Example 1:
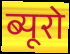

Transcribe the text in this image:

ब्यूरो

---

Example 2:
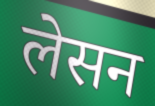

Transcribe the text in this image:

लेसन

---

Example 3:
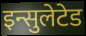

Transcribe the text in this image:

इन्सुलेटेड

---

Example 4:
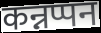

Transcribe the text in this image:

कन्नप्पन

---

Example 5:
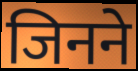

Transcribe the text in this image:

जिनने